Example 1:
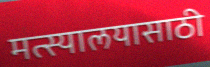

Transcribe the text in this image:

मत्स्यालयासाठी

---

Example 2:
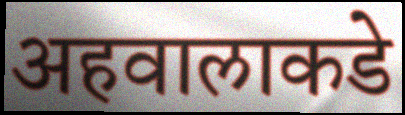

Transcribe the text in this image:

अहवालाकडे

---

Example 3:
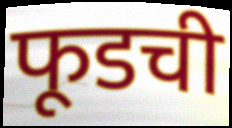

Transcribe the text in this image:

फूडची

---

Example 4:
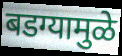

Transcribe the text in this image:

बडग्यामुळे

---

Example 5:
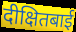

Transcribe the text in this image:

दीक्षितबाई